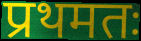
प्रथमतः